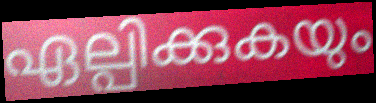
ഏല്പിക്കുകയും